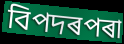
বিপদৰপৰা